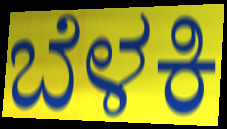
ಬೆಳಕಿ